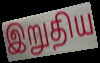
இறுதிய